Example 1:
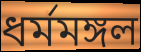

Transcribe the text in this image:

ধর্মমঙ্গল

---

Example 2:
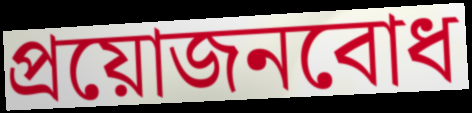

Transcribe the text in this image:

প্রয়োজনবোধ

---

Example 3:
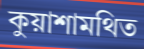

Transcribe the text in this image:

কুয়াশামথিত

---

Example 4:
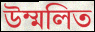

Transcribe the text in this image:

উম্মলিত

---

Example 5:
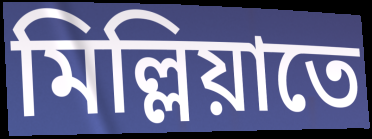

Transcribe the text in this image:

মিল্লিয়াতে